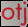
otj